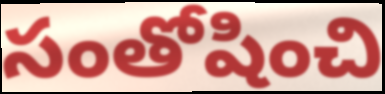
సంతోషించి